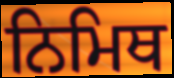
ਨਿਮਿਥ